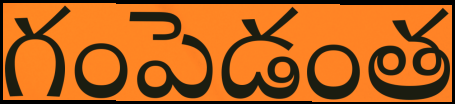
గంపెడంత